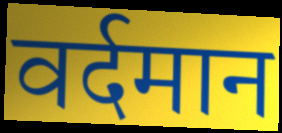
वर्दमान